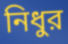
নিধুর